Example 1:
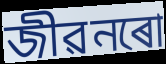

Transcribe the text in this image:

জীৱনৰো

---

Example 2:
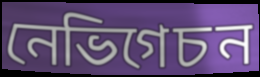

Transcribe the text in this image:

নেভিগেচন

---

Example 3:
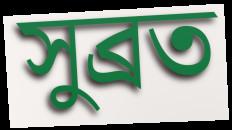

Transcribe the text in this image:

সুব্ৰত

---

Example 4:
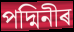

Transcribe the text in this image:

পদ্মিনীৰ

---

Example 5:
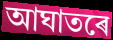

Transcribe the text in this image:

আঘাতৰে